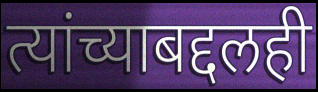
त्यांच्याबद्दलही